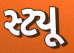
સ્ટ્યૂ